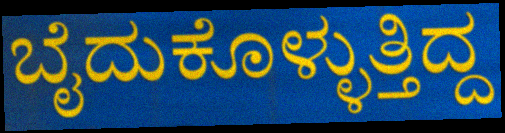
ಬೈದುಕೊಳ್ಳುತ್ತಿದ್ದ